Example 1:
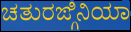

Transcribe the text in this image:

ಚತುರಙ್ಗಿನಿಯಾ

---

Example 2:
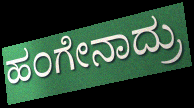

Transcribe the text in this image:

ಹಂಗೇನಾದ್ರು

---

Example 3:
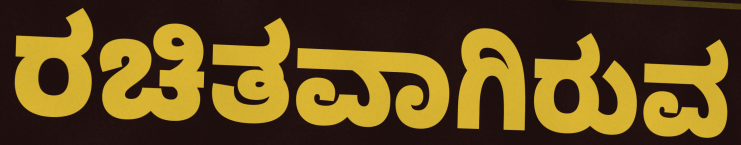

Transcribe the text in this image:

ರಚಿತವಾಗಿರುವ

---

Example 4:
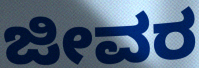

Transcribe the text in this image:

ಜೀವರ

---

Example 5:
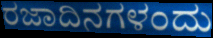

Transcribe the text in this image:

ರಜಾದಿನಗಳಂದು